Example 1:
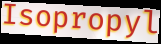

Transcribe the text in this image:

Isopropyl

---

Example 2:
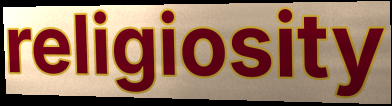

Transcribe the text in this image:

religiosity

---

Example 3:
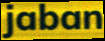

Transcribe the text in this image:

jaban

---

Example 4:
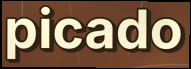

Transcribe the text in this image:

picado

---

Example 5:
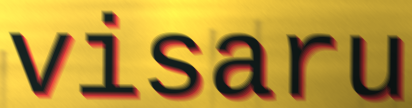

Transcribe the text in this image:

visaru